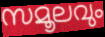
സമൂലവും